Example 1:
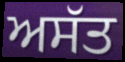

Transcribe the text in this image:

ਅਸੱਤ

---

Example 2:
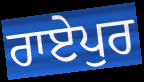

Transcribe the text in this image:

ਰਾਏਪੁਰ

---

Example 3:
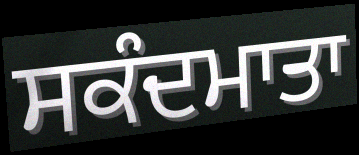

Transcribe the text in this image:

ਸਕੰਦਮਾਤਾ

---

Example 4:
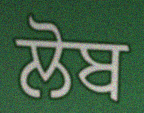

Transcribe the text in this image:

ਲੋਬ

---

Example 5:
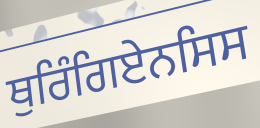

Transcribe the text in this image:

ਥੁਰਿੰਗਿਏਨਸਿਸ